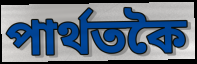
পাৰ্থতকৈ